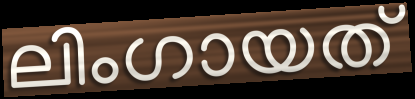
ലിംഗായത്